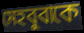
মেহবুবাকে